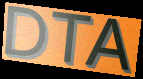
DTA